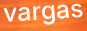
vargas